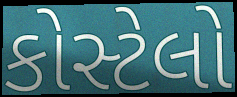
કોસ્ટેલો